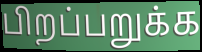
பிறப்பறுக்க